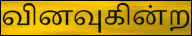
வினவுகின்ற